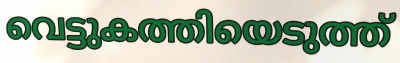
വെട്ടുകത്തിയെടുത്ത്